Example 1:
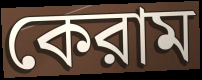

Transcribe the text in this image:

কেরাম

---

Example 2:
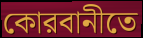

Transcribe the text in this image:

কোরবানীতে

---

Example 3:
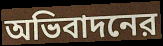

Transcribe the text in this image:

অভিবাদনের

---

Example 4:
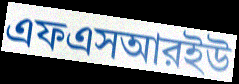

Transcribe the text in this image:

এফএসআরইউ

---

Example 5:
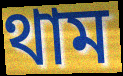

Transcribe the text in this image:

থাম